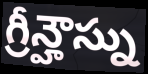
గ్రీన్హౌస్ను